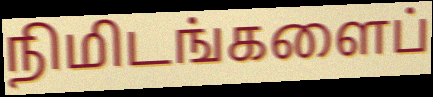
நிமிடங்களைப்